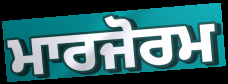
ਮਾਰਜੋਰਮ